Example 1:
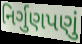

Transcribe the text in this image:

નિર્ગુણપણું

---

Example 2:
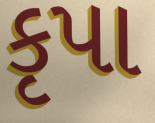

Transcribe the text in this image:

કૃપા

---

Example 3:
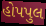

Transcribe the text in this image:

હોપપુલ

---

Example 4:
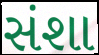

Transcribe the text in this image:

સંશા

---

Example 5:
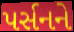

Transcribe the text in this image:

પર્સનને